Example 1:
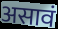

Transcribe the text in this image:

असावं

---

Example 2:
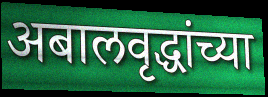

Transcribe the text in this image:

अबालवृद्धांच्या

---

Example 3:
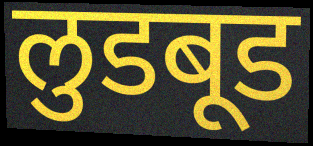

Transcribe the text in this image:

लुडबूड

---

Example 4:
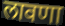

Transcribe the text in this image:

लावणा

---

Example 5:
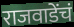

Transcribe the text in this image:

राजवाडेंचं